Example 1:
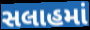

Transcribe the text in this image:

સલાહમાં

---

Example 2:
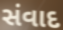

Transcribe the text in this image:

સંવાદ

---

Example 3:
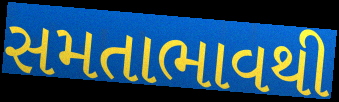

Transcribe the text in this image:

સમતાભાવથી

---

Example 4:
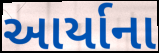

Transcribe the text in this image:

આર્યાના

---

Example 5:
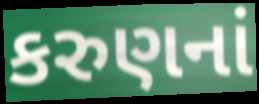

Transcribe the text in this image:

કરુણનાં